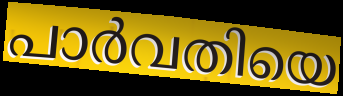
പാർവതിയെ